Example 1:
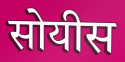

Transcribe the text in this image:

सोयीस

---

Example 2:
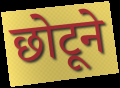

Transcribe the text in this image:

छोटूने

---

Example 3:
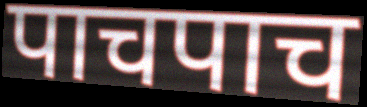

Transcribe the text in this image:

पाचपाच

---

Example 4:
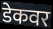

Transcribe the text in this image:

डेकवर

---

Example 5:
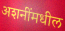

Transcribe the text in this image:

अशनींमधील